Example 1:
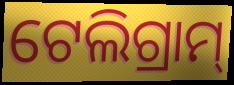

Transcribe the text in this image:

ଟେଲିଗ୍ରାମ୍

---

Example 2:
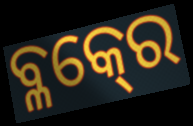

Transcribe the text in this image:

ବ୍ଳକ୍‍ରେ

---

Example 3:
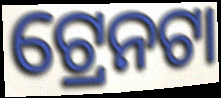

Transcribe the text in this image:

ଟ୍ରେନଟା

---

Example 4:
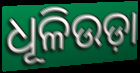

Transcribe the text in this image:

ଧୂଳିଉଡ଼ା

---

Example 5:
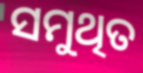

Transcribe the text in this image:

ସମୁଥିତ